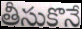
తీసుకొనే